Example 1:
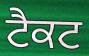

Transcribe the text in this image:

ਟੈਕਟ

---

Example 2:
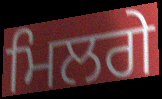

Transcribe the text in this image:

ਮਿਲਗੇ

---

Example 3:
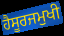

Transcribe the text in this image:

ਹੈਸੂਰਜਮੁਖੀ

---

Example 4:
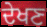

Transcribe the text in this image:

ਦੇਖਣ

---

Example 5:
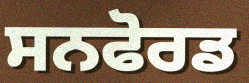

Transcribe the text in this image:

ਸਨਫੋਰਡ